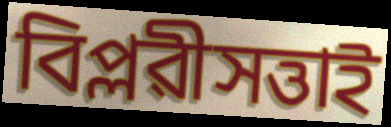
বিপ্লৱীসত্তাই